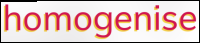
homogenise